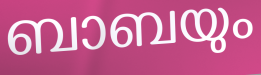
ബാബയും